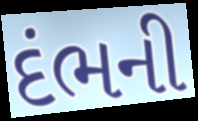
દંભની